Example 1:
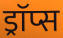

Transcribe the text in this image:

ड्रॉप्‍स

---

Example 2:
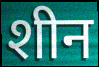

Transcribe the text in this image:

शीन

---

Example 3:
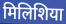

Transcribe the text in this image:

मिलिशिया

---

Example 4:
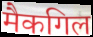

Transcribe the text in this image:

मैकगिल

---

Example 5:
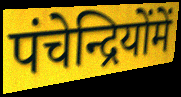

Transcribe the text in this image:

पंचेन्द्रियोंमें